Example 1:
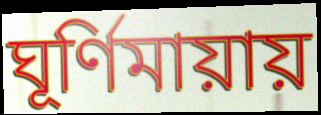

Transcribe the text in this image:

ঘূর্ণিমায়ায়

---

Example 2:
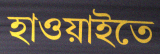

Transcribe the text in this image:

হাওয়াইতে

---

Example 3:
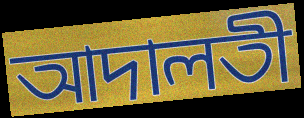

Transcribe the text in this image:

আদালতী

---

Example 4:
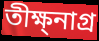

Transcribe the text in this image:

তীক্ষ্নাগ্র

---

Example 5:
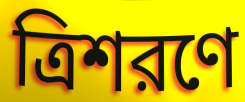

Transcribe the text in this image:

ত্রিশরণে